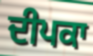
ਦੀਪਕਾ